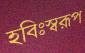
হবিঃস্বরূপ